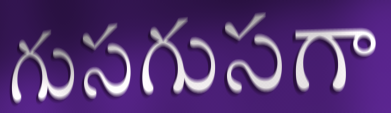
గుసగుసగా